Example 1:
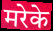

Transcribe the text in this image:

मरेके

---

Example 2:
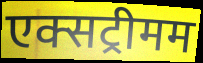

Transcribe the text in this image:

एक्सट्रीमम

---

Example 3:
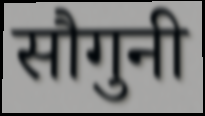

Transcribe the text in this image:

सौगुनी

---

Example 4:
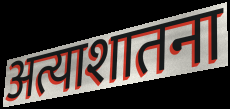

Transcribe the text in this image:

अत्याशातना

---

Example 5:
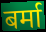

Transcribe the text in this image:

बर्मा